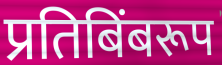
प्रतिबिंबरूप